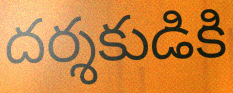
దర్శకుడికి